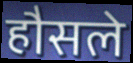
हौसले